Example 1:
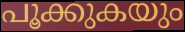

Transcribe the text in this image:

പൂക്കുകയും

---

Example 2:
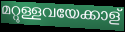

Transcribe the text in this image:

മറ്റുള്ളവയേക്കാള്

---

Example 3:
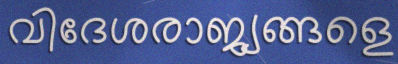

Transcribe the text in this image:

വിദേശരാജ്യങ്ങളെ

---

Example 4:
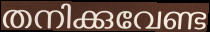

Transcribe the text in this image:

തനിക്കുവേണ്ട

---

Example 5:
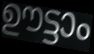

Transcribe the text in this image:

ഊട്ടാം